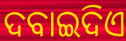
ଦବାଇଦିଏ